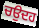
ਚਉਦਹ